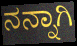
ನನ್ನಾಗಿ